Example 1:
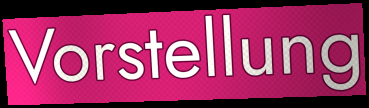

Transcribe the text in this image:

Vorstellung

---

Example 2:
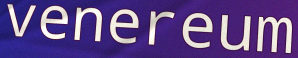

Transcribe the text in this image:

venereum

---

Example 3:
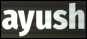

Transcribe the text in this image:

ayush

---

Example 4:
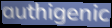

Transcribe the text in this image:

authigenic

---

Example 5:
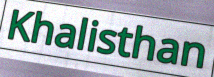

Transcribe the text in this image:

Khalisthan